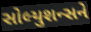
સોલ્યુશન્સને